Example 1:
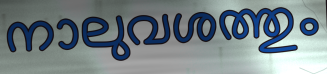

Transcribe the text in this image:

നാലുവശത്തും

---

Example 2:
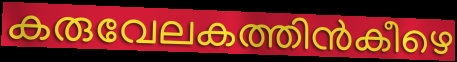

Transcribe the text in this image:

കരുവേലകത്തിൻകീഴെ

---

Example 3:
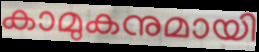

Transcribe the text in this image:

കാമുകനുമായി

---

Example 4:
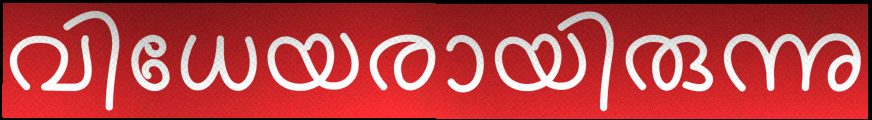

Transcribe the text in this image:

വിധേയരായിരുന്നു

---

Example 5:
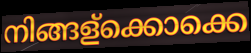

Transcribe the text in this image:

നിങ്ങള്ക്കൊക്കെ